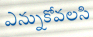
ఎన్నుకోవలసి